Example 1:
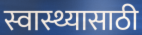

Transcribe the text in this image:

स्वास्थ्यासाठी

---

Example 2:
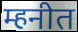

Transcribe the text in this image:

म्हनीत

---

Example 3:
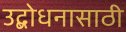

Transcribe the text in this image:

उद्बोधनासाठी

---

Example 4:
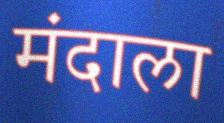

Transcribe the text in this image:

मंदाला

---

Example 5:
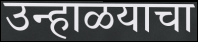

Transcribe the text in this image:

उन्हाळयाचा